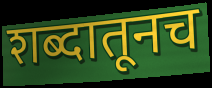
शब्दातूनच